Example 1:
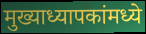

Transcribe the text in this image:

मुख्याध्यापकांमध्ये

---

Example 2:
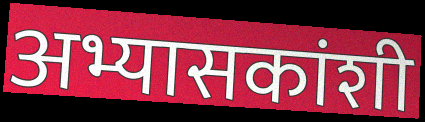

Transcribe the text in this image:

अभ्यासकांशी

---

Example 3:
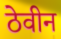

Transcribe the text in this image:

ठेवीन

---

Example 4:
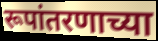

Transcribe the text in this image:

रूपांतरणाच्या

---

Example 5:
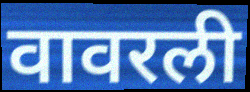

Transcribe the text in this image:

वावरली